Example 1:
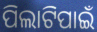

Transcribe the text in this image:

ପିଲାଟିପାଇଁ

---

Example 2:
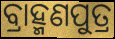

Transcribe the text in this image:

ବ୍ରାହ୍ମଣପୁତ୍ର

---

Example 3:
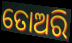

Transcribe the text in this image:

ତୋଅରି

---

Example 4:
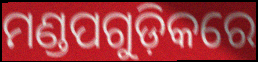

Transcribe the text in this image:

ମଣ୍ଡପଗୁଡ଼ିକରେ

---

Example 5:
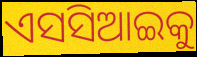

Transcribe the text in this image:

ଏସସିଆଇକୁ